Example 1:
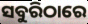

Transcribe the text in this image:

ସବୁରିଠାରେ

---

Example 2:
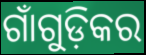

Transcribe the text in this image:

ଗାଁଗୁଡ଼ିକର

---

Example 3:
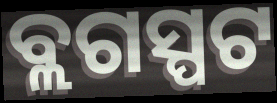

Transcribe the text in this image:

ବ୍ଲଗସ୍ପଟ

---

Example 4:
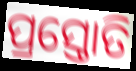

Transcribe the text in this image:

ପ୍ରସ୍ତୋତି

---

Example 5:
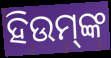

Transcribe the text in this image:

ହିଉମ୍‌ଙ୍କ